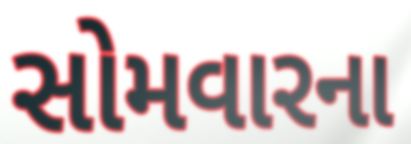
સોમવારના